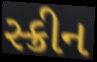
સ્ક્રીન